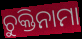
ଚୁକ୍ତିନାମା